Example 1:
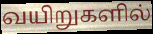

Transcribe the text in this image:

வயிறுகளில்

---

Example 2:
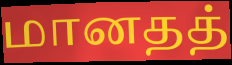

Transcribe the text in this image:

மானதத்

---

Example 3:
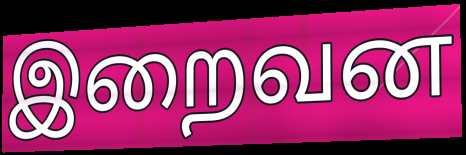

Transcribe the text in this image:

இறைவன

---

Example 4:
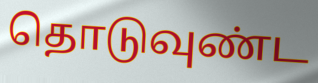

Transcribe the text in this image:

தொடுவுண்ட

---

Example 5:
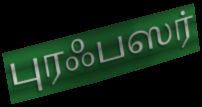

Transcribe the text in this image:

புரஃபஸர்